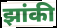
झांकी